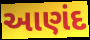
આણંદ